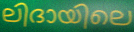
ലിദായിലെ